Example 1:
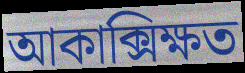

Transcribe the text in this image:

আকাক্সিক্ষত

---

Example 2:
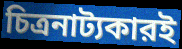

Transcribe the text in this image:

চিত্রনাট্যকারই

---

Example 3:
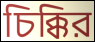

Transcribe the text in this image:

চিক্কির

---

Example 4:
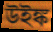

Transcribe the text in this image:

উইঙ্ক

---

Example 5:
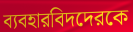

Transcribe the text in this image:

ব্যবহারবিদদেরকে